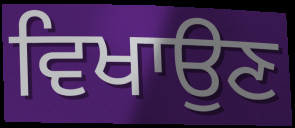
ਵਿਖਾਉਣ